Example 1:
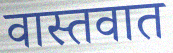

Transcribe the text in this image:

वास्तवात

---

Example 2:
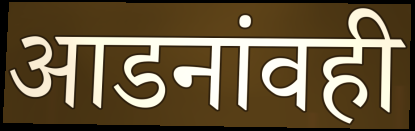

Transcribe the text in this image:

आडनांवही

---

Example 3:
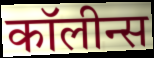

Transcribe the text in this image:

कॉलीन्स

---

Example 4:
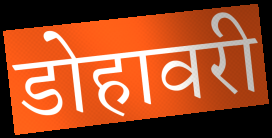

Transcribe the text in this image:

डोहावरी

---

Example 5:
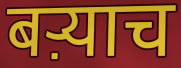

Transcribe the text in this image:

बऱ्‍याच